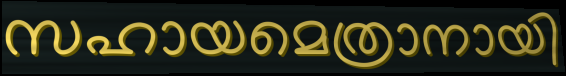
സഹായമെത്രാനായി